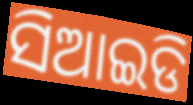
ସିଆଇଡି